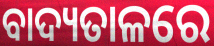
ବାଦ୍ୟତାଳରେ